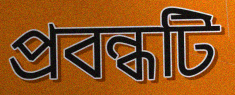
প্ৰবন্ধটি